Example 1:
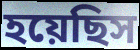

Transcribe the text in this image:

হয়েছিস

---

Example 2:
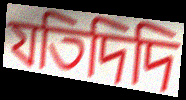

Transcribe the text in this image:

যতিদিদি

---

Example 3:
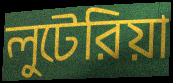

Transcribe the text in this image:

লুটেরিয়া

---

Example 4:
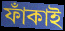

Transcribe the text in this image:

ফাঁকাই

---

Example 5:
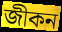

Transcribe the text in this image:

জীকন